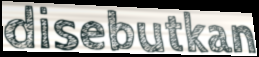
disebutkan